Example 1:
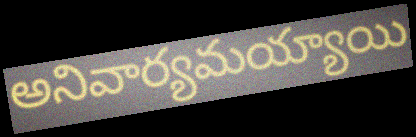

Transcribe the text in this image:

అనివార్యమయ్యాయి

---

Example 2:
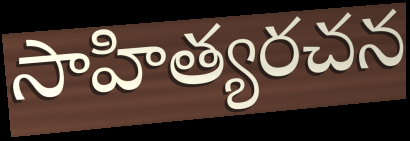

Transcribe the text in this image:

సాహిత్యరచన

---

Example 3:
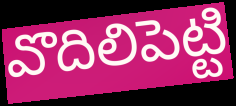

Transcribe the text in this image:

వొదిలిపెట్టి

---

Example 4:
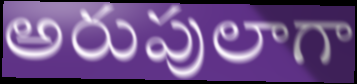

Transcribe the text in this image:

అరుపులాగా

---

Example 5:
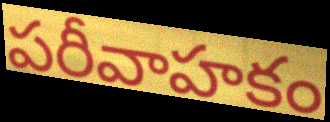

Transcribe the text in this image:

పరీవాహకం